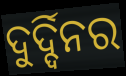
ଦୁର୍ଦ୍ଦିନର